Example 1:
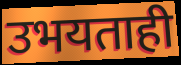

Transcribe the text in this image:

उभयताही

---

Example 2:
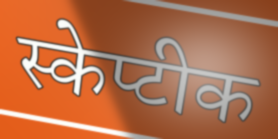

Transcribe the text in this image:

स्केप्टीक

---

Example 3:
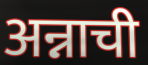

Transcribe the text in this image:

अन्नाची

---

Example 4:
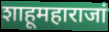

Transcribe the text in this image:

शाहूमहाराजां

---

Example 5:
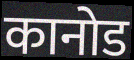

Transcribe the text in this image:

कानोड